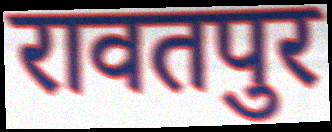
रावतपुर